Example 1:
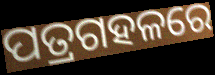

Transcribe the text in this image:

ପତ୍ରଗହଳରେ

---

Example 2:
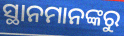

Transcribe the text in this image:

ସ୍ଥାନମାନଙ୍କରୁ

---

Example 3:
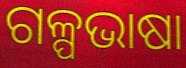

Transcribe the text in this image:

ଗଳ୍ପଭାଷା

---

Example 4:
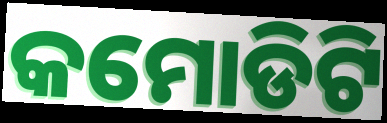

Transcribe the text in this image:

କମୋଡିଟି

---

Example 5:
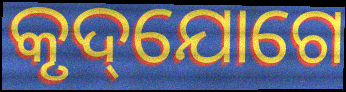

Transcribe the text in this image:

କୃଦ୍‌ଯୋଗେ